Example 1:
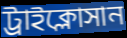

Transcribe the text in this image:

ট্রাইক্লোসান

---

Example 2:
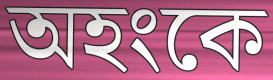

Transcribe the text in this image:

অহংকে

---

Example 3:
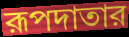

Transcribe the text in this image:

রূপদাতার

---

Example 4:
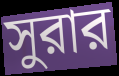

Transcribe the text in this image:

সুরার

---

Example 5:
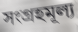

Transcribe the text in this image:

সংগ্রহমূল্য